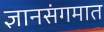
ज्ञानसंगमात